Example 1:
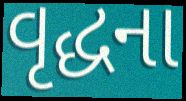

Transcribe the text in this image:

વૃદ્ધના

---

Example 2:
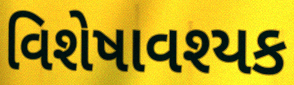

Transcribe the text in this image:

વિશેષાવશ્યક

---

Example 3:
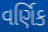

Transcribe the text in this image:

વર્ણિક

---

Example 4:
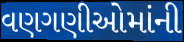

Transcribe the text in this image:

વણગણીઓમાંની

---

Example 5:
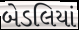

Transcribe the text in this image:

બેડલિયાં